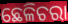
ଛେଳିଚରା